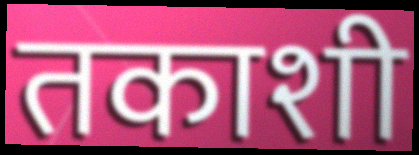
तकाशी